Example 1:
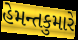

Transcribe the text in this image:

હેમન્તકુમારે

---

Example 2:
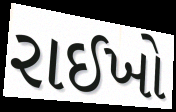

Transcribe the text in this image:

રાઈખો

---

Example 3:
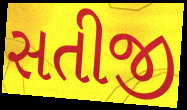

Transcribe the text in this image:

સતીજી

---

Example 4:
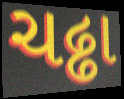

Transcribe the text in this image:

ચઢ્ઢા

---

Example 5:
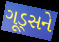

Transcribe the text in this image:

ગૂડ્સને